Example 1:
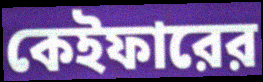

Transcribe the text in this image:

কেইফারের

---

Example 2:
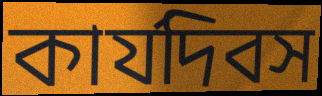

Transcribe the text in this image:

কার্যদিবস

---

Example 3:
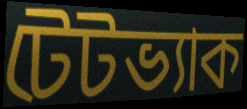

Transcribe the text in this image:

টেটভ্যাক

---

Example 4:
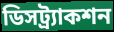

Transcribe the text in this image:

ডিসট্র্যাকশন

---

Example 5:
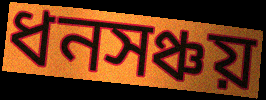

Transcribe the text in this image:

ধনসঞ্চয়